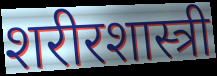
शरीरशास्त्री